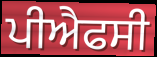
ਪੀਐਫਸੀ